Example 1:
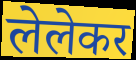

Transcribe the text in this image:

लेलेकर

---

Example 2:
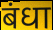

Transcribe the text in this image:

बंधा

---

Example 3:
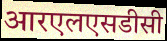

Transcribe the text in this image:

आरएलएसडीसी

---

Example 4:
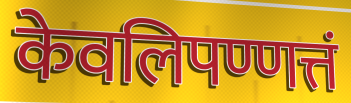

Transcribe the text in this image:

केवलिपण्णत्तं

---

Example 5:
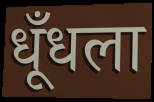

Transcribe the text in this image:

धूँधला